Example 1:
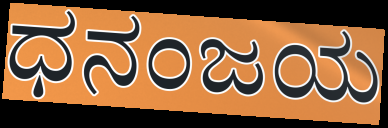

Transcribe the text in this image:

ಧನಂಜಯ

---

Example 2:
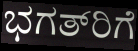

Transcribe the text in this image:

ಭಗತ್‍ರಿಗೆ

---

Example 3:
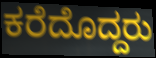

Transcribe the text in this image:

ಕರೆದೊದ್ದರು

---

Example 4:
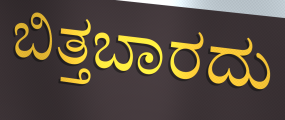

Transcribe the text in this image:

ಬಿತ್ತಬಾರದು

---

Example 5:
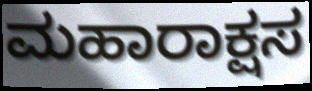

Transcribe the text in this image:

ಮಹಾರಾಕ್ಷಸ